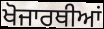
ਖੋਜਾਰਥੀਆਂ